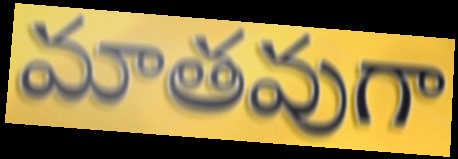
మాతవుగా